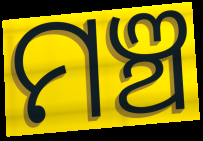
ମଞ୍ଚ